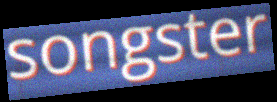
songster